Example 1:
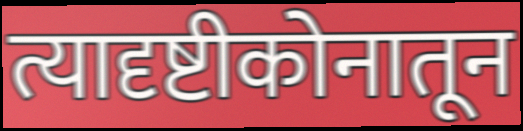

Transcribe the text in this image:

त्यादृष्टीकोनातून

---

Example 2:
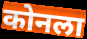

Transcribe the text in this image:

कोनला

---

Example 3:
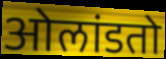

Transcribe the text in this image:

ओलांडतो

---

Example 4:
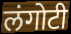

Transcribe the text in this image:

लंगोटी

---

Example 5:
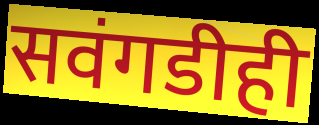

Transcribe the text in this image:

सवंगडीही